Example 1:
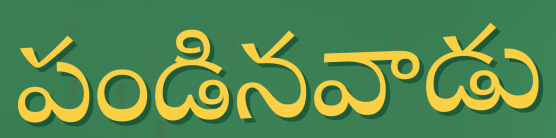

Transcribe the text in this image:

పండినవాడు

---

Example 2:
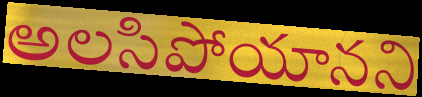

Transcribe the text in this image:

అలసిపోయానని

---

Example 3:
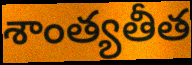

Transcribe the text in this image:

శాంత్యతీత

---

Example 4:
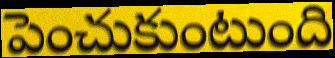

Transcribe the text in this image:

పెంచుకుంటుంది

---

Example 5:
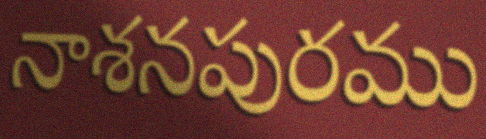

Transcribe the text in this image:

నాశనపురము